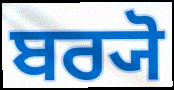
ਬਰ੍ਯੋ